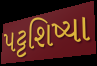
પટ્ટશિષ્યા